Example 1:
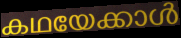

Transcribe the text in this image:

കഥയേക്കാൾ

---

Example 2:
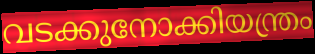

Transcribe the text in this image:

വടക്കുനോക്കിയന്ത്രം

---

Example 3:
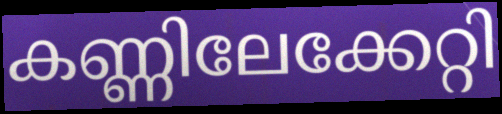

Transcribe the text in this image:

കണ്ണിലേക്കേറ്റി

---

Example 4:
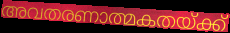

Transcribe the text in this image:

അവതരണാത്മകതയ്ക്ക്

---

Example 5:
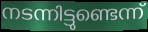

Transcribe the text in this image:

നടന്നിട്ടുണ്ടെന്ന്